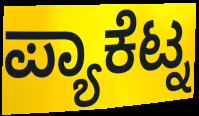
ಪ್ಯಾಕೆಟ್ನ